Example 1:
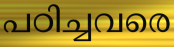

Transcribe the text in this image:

പഠിച്ചവരെ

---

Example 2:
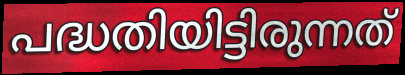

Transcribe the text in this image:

പദ്ധതിയിട്ടിരുന്നത്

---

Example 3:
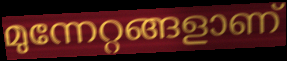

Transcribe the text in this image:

മുന്നേറ്റങ്ങളാണ്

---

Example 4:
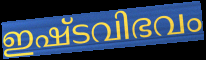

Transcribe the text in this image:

ഇഷ്ടവിഭവം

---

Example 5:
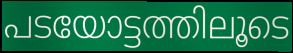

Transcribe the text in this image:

പടയോട്ടത്തിലൂടെ